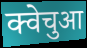
क्वेचुआ